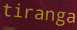
tiranga